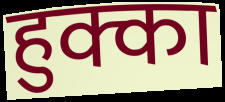
हुक्का